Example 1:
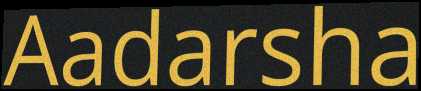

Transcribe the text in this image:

Aadarsha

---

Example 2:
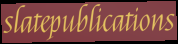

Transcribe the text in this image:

slatepublications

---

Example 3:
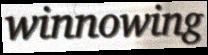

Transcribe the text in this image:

winnowing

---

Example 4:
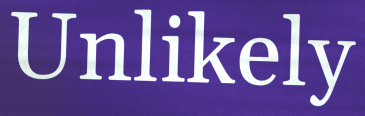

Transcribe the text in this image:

Unlikely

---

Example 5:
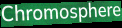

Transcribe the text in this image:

Chromosphere